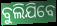
ବୁଲିଯିବେ